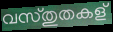
വസ്തുതകള്